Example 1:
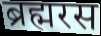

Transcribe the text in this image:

ब्रह्मरस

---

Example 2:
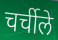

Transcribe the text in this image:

चर्चीले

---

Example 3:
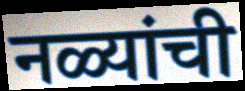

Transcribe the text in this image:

नळ्यांची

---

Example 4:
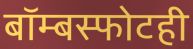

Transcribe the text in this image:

बॉम्बस्फोटही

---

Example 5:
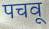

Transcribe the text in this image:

पचवू